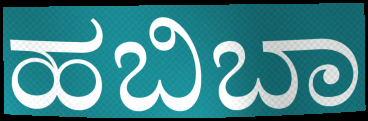
ಹಬಿಬಾ